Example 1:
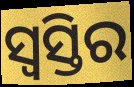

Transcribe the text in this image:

ସ୍ୱସ୍ତିର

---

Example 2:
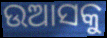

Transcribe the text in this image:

ଉଆସକୁ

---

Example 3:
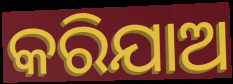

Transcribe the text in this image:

କରିଯାଅ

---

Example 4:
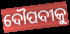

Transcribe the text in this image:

ଦୌପଦୀକୁ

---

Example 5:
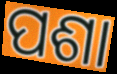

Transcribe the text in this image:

ପଶା